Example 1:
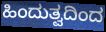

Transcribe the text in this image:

ಹಿಂದುತ್ವದಿಂದ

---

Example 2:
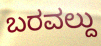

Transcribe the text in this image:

ಬರವಲ್ದು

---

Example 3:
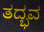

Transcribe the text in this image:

ತದ್ಭವ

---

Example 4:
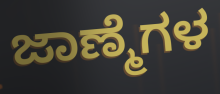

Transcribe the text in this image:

ಜಾಣ್ಮೆಗಳ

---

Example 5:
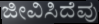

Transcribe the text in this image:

ಜೀವಿಸಿದೆವು